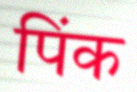
पिंक